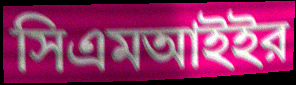
সিএমআইইর